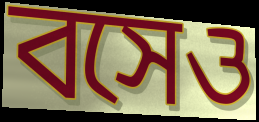
বসেও